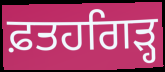
ਫ਼ਤਹਗਿੜ੍ਹ